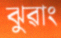
ঝুৱাং